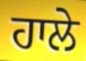
ਹਾਲੇ